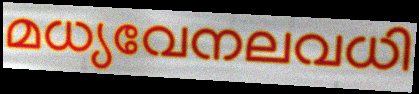
മധ്യവേനലവധി